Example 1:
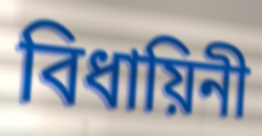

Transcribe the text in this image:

বিধায়িনী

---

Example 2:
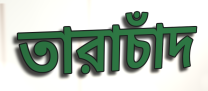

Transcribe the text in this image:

তারাচাঁদ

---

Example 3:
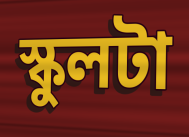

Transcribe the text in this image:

স্কুলটা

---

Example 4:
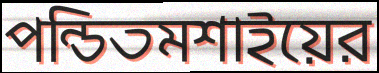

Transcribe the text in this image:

পন্ডিতমশাইয়ের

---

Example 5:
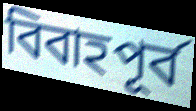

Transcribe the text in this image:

বিবাহপূর্ব